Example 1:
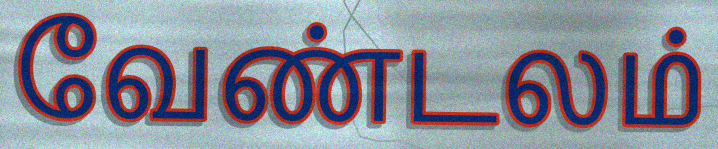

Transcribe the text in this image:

வேண்டலம்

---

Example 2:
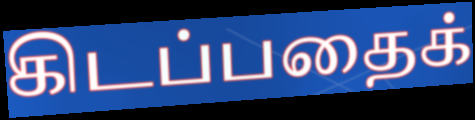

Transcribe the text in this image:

கிடப்பதைக்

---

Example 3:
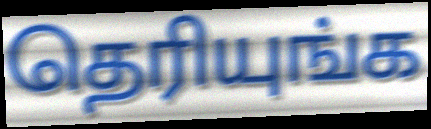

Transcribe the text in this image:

தெரியுங்க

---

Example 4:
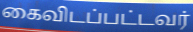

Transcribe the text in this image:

கைவிடப்பட்டவர்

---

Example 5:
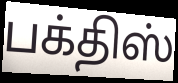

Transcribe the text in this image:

பக்திஸ்